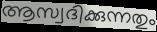
ആസ്വദിക്കുന്നതും